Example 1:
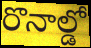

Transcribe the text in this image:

రొనాల్డో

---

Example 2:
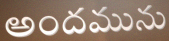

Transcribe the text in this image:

అందమును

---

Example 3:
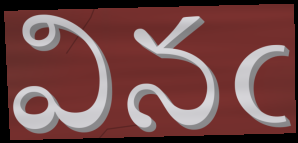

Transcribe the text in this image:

వినఁ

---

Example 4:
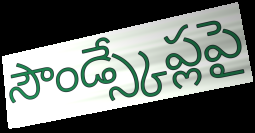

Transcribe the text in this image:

సౌండ్స్కేప్లపై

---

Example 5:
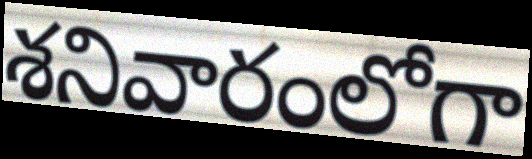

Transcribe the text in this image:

శనివారంలోగా